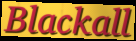
Blackall